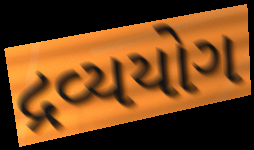
દ્રવ્યયોગ